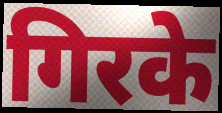
गिरके